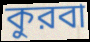
কুরবা